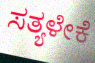
ಸತ್ಯಳೇಕೆ